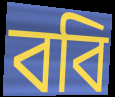
ববি